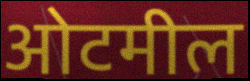
ओटमील